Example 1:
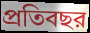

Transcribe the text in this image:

প্রতিবছর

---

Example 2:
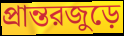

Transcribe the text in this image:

প্রান্তরজুড়ে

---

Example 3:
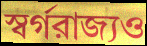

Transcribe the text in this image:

স্বর্গরাজ্যও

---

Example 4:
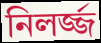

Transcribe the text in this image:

নিলর্জ্জ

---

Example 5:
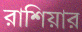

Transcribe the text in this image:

রাশিয়ার